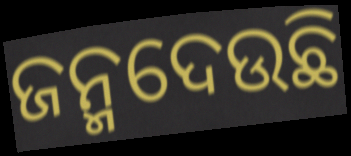
ଜନ୍ମଦେଉଛି